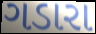
ગડારા